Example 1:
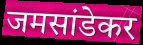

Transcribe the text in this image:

जमसांडेकर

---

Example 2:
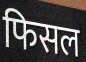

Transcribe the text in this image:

फिसल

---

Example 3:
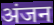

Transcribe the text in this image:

अंजन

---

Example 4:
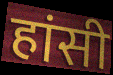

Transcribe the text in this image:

हांसी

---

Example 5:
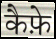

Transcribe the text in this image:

कैफ़े